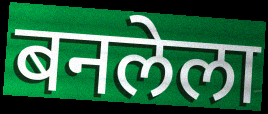
बनलेला